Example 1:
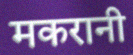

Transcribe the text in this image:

मकरानी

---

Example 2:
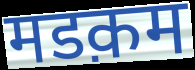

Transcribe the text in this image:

मडक़म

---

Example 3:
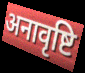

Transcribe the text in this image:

अनावृष्टि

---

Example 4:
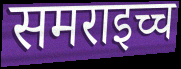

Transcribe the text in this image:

समराइच्च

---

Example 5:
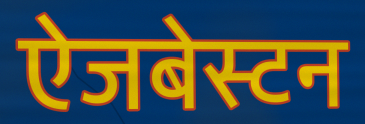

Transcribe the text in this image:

ऐजबेस्टन